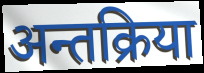
अन्तक्रिया